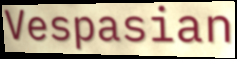
Vespasian